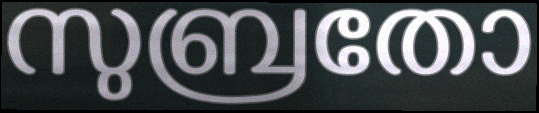
സുബ്രതോ